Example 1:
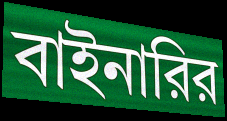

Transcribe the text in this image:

বাইনারির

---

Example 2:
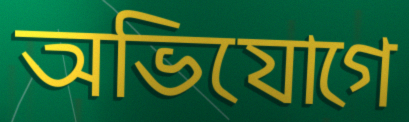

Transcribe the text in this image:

অভিযোগে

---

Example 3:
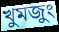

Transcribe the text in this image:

খুমজুং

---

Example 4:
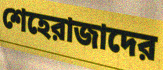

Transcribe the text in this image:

শেহেরাজাদের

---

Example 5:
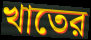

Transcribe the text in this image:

খাতের